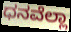
ಧನವೆಲ್ಲಾ